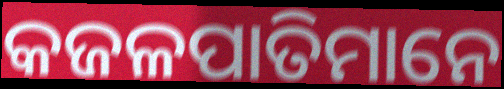
କଜଳପାତିମାନେ